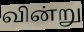
வின்று